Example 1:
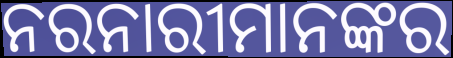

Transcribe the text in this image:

ନରନାରୀମାନଙ୍କର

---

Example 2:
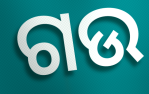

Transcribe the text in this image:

ଗଉ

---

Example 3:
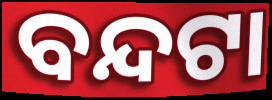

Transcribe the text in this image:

ବନ୍ଦଟା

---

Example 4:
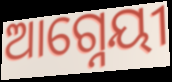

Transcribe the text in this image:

ଆଗ୍ନେୟୀ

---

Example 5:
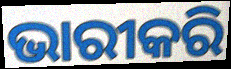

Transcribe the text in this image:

ଭାରୀକରି